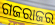
ଗଜରାଜର